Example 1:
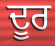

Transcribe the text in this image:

ਦੂਰ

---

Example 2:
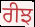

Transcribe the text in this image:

ਰੀਝ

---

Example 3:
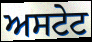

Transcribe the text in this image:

ਅਸਟੇਟ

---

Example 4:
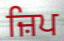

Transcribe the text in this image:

ਜ਼ਿਪ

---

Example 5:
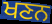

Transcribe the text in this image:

ਖਣਨ